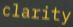
clarity